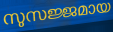
സുസജ്ജമായ